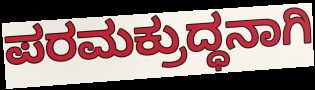
ಪರಮಕ್ರುದ್ಧನಾಗಿ